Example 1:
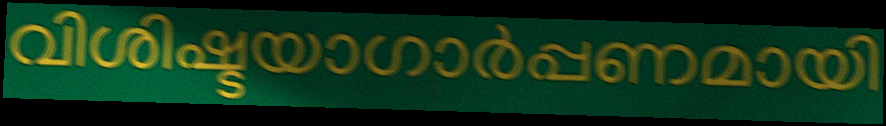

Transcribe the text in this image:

വിശിഷ്ടയാഗാർപ്പണമായി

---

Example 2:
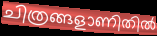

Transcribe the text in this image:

ചിത്രങ്ങളാണിതിൽ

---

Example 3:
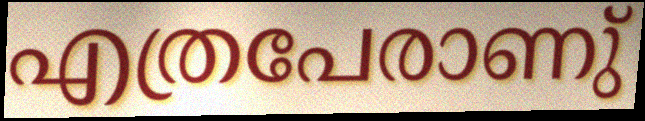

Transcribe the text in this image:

എത്രപേരാണു്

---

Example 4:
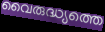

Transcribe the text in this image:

വൈരുദ്ധ്യത്തെ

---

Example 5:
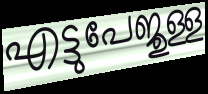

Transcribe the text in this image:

എട്ടുപേജുള്ള